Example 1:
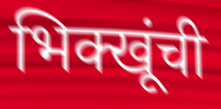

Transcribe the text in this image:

भिक्खूंची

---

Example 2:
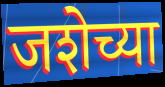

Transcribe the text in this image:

जशेच्या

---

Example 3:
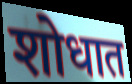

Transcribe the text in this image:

शोधात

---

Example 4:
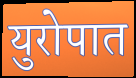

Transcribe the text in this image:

युरोपात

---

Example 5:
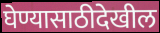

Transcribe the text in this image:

घेण्यासाठीदेखील